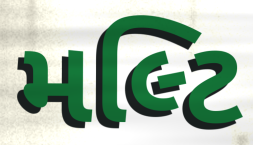
મલ્ટિ